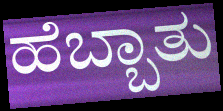
ಹೆಬ್ಬಾತು